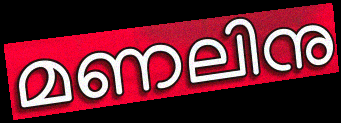
മണലിനു